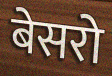
बेसरो